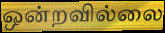
ஒன்றவில்லை